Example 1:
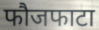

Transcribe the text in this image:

फौजफाटा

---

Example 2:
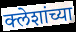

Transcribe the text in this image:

क्लेशांच्या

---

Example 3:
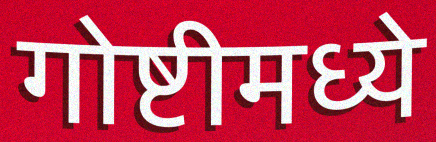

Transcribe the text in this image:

गोष्टीमध्ये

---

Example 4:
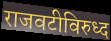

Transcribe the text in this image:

राजवटीविरुध्द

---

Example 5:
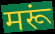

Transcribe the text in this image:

मरूं